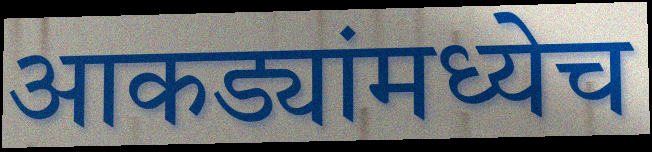
आकड्यांमध्येच